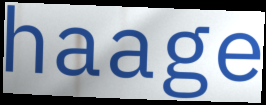
haage